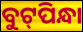
ବୁଟ୍‌ପିନ୍ଧା